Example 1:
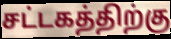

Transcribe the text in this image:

சட்டகத்திற்கு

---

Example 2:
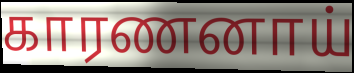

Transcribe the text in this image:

காரணனாய்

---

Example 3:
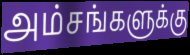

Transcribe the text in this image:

அம்சங்களுக்கு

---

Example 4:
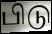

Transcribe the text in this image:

பிடு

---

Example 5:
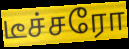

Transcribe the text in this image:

டீச்சரோ